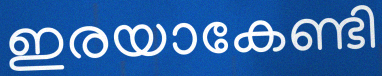
ഇരയാകേണ്ടി